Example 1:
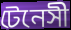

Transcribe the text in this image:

টেনেসী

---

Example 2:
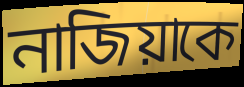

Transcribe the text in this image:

নাজিয়াকে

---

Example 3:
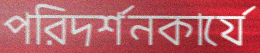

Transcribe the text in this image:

পরিদর্শনকার্যে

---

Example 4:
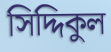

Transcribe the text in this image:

সিদ্দিকুল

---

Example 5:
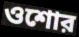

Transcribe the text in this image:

ওশোর